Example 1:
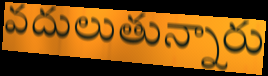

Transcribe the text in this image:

వదులుతున్నారు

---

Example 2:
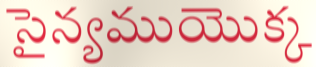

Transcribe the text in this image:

సైన్యముయొక్క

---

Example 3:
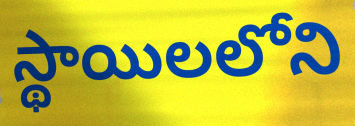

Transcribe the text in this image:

స్థాయిలలోని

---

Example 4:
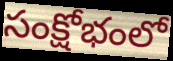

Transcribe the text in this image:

సంక్షోభంలో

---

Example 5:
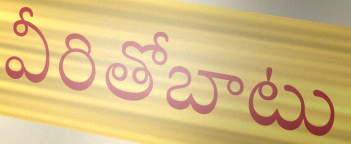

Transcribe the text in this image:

వీరితోబాటు